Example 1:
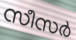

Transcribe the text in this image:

സീസർ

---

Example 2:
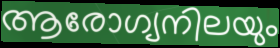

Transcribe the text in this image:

ആരോഗ്യനിലയും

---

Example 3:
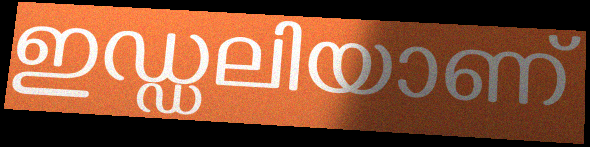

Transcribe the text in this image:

ഇഡ്ഡലിയാണ്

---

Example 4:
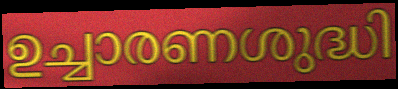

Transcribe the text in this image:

ഉച്ചാരണശുദ്ധി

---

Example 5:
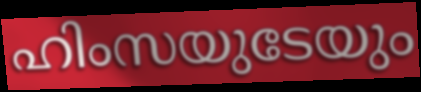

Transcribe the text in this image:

ഹിംസയുടേയും